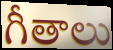
గీతాలు